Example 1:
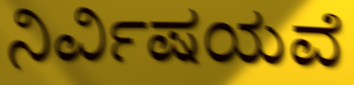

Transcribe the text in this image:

ನಿರ್ವಿಷಯವೆ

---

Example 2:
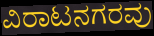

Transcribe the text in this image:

ವಿರಾಟನಗರವು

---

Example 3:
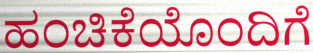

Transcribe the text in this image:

ಹಂಚಿಕೆಯೊಂದಿಗೆ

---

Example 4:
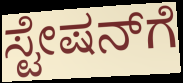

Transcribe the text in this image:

ಸ್ಟೇಷನ್‌ಗೆ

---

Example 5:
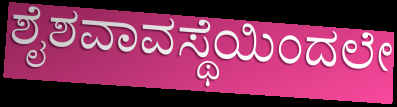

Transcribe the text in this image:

ಶೈಶವಾವಸ್ಥೆಯಿಂದಲೇ